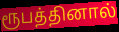
ரூபத்தினால்